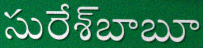
సురేశ్‌బాబూ